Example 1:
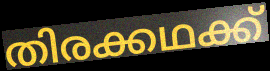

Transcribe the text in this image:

തിരക്കഥക്ക്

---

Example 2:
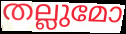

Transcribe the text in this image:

തല്ലുമോ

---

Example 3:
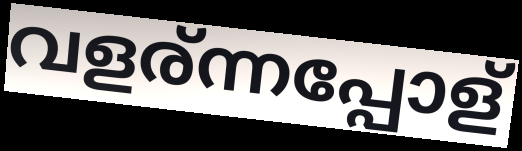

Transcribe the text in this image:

വളര്ന്നപ്പോള്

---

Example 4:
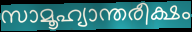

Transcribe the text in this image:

സാമൂഹ്യാന്തരീക്ഷം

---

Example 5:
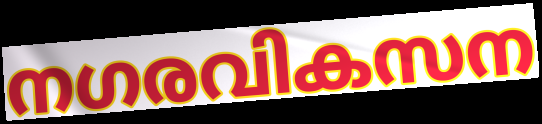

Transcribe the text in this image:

നഗരവികസന